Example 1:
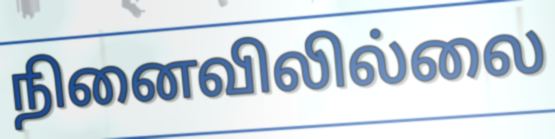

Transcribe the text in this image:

நினைவிலில்லை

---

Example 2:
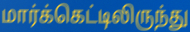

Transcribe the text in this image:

மார்க்கெட்டிலிருந்து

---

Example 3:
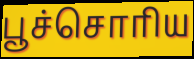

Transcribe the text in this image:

பூச்சொரிய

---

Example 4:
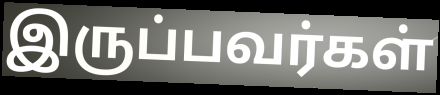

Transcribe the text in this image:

இருப்பவர்கள்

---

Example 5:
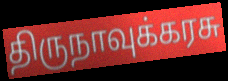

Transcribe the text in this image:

திருநாவுக்கரசு